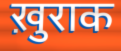
ख़ुराक